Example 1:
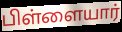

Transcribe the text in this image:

பிள்ளையார்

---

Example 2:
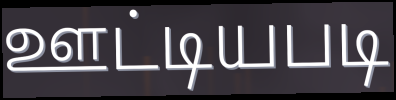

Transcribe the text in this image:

ஊட்டியபடி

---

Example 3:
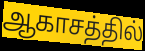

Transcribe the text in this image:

ஆகாசத்தில்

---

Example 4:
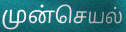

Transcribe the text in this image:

முன்செயல்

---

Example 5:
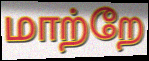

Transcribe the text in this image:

மாற்றே